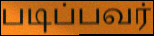
படிப்பவர்